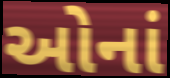
ઓનાં